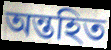
অন্তহিত